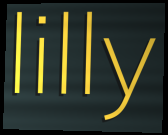
lilly